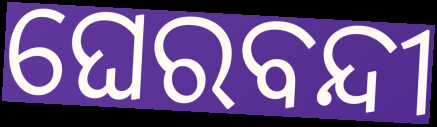
ଘେରବନ୍ଦୀ